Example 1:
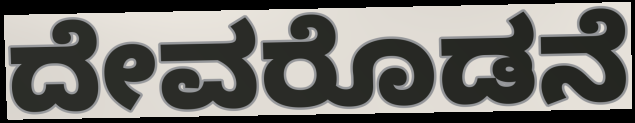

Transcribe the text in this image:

ದೇವರೊಡನೆ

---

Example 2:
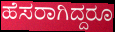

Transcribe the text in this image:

ಹೆಸರಾಗಿದ್ದರೂ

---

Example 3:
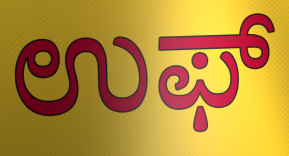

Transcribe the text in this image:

ಉಫ್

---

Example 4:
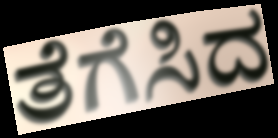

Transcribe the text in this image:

ತೆಗೆಸಿದ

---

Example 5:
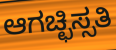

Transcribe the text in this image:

ಆಗಚ್ಛಿಸ್ಸತಿ